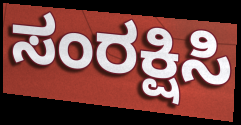
ಸಂರಕ್ಷಿಸಿ